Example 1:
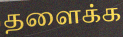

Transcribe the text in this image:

தளைக்க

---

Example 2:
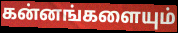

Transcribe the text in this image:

கன்னங்களையும்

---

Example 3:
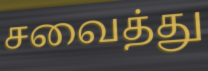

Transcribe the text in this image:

சவைத்து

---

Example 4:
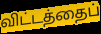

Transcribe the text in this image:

விட்டத்தைப்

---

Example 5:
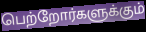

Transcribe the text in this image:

பெற்றோர்களுக்கும்